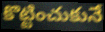
కొట్టించుకునే